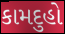
કામદુહો